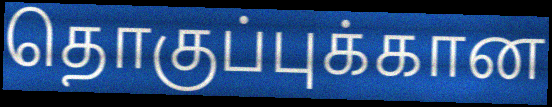
தொகுப்புக்கான